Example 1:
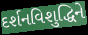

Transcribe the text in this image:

દર્શનવિશુદ્ધિને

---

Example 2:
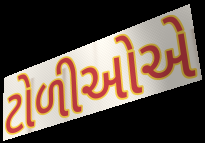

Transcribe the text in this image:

ટોળીઓએ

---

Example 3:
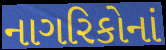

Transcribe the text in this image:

નાગરિકોનાં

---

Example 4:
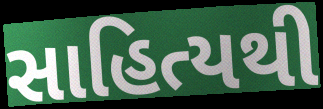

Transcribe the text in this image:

સાહિત્યથી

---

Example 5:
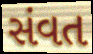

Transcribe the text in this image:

સંવત